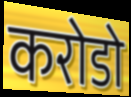
करोडो